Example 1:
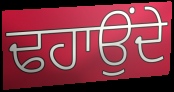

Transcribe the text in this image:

ਢਹਾਉਂਦੇ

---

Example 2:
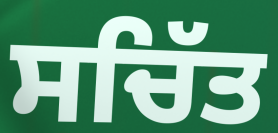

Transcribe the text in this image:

ਸਚਿੱਤ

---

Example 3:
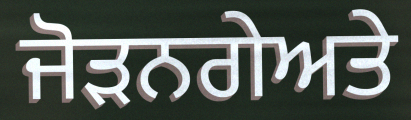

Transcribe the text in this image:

ਜੋੜਨਗੇਅਤੇ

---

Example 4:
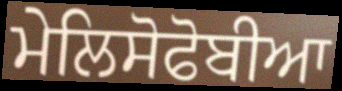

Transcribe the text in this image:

ਮੇਲਿਸੋਫੋਬੀਆ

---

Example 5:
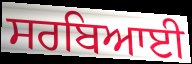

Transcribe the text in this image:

ਸਰਬਿਆਈ